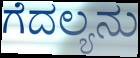
ಗೆದಲ್ಯನು